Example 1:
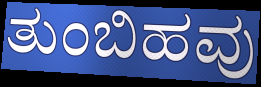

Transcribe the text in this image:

ತುಂಬಿಹವು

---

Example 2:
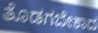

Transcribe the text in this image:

ತೊಡಗಬೇಕಾದ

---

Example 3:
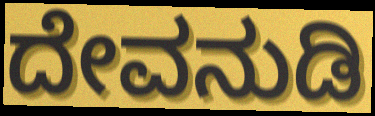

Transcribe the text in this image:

ದೇವನುಡಿ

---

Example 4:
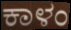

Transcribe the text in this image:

ಕಾಳಂ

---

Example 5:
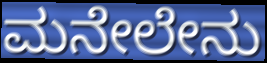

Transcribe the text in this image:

ಮನೇಲೇನು